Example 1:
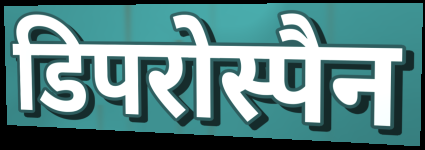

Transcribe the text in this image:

डिपरोस्पैन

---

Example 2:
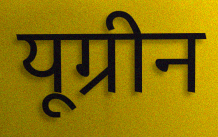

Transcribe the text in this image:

यूग्रीन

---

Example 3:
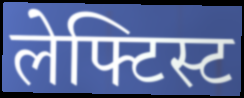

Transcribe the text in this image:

लेफ्टिस्ट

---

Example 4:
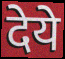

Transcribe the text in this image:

देये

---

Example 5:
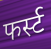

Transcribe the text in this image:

फर्स्ट